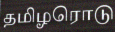
தமிழரொடு